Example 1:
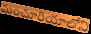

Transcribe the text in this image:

మంచూరియాలోని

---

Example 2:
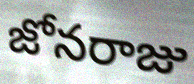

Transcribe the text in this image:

జోనరాజు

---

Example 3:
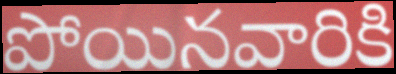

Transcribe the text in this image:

పోయినవారికి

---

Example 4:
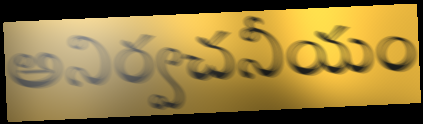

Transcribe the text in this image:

అనిర్వచనీయం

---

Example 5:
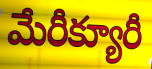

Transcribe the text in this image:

మేరీక్యూరీ